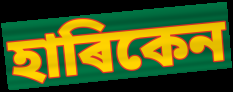
হাৰিকেন